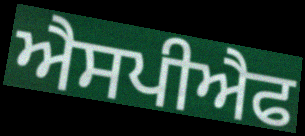
ਐਸਪੀਐਫ